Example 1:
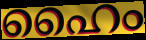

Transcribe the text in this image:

ഹൈം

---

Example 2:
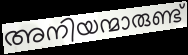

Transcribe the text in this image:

അനിയന്മാരുണ്ട്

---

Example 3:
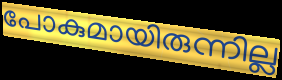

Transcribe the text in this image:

പോകുമായിരുന്നില്ല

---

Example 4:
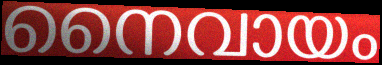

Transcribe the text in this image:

നൈവായം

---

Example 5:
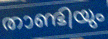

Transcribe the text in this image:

താണ്ടിയും